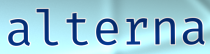
alterna